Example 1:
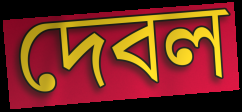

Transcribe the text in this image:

দেবল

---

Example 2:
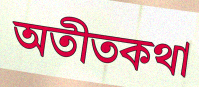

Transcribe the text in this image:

অতীতকথা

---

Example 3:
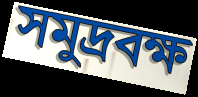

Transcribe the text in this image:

সমুদ্রবক্ষ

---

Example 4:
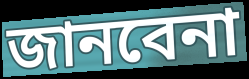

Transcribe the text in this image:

জানবেনা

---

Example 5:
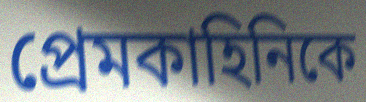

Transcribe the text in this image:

প্রেমকাহিনিকে